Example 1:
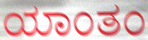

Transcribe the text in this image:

ಯಾಂತಂ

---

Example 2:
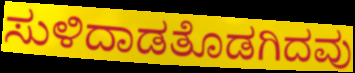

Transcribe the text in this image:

ಸುಳಿದಾಡತೊಡಗಿದವು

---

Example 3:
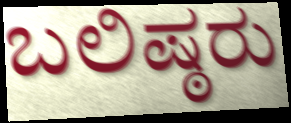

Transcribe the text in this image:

ಬಲಿಷ್ಠರು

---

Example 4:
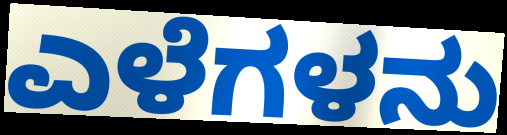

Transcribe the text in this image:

ಎಳೆಗಳನು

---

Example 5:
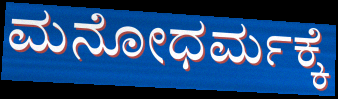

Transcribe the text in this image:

ಮನೋಧರ್ಮಕ್ಕೆ